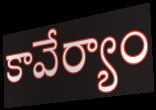
కావేర్యాం